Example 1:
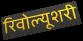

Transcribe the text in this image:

रिवोल्यूशरी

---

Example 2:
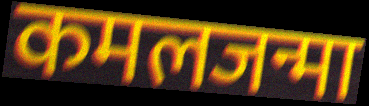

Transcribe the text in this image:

कमलजन्मा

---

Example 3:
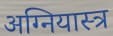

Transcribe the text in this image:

अग्नियास्त्र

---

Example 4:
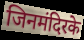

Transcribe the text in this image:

जिनमंदिरके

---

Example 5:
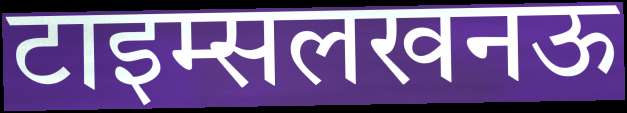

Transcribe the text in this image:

टाइम्सलखनऊ